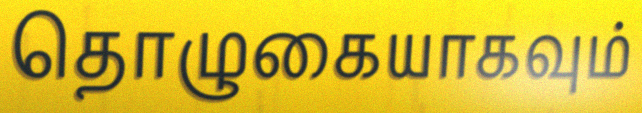
தொழுகையாகவும்